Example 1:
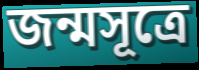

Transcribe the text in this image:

জন্মসূত্রে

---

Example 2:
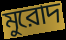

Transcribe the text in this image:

মুরোদ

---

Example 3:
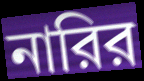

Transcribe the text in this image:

নারির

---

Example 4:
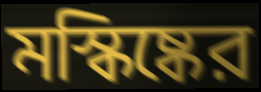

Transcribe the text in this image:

মস্কিষ্কের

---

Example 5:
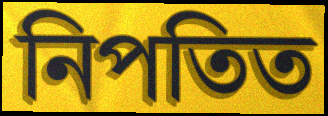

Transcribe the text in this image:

নিপতিত